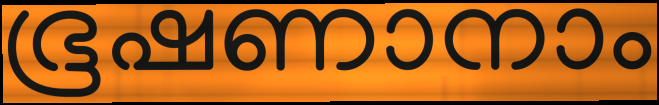
ഭൂഷണാനാം